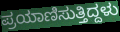
ಪ್ರಯಾಣಿಸುತ್ತಿದ್ದಳು